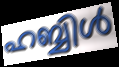
ഹബ്ബിൾ